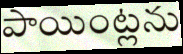
పాయింట్లను